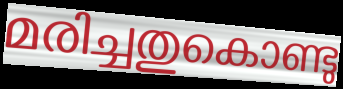
മരിച്ചതുകൊണ്ടു